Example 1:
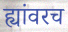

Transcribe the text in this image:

ह्यांवरच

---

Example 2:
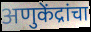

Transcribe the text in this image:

अणुकेंद्रांचा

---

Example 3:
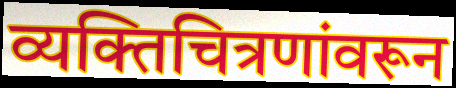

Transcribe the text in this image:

व्यक्तिचित्रणांवरून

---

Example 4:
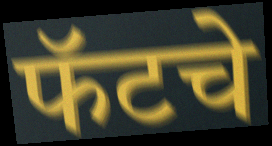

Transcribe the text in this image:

फॅटचे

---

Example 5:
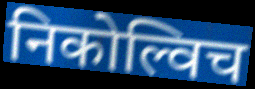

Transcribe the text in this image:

निकोल्विच